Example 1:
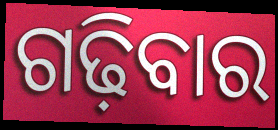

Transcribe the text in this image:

ଗଢ଼ିବାର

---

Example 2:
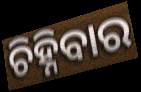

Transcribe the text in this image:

ଚିହ୍ନିବାର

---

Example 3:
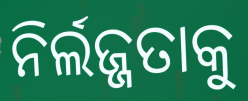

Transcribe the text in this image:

ନିର୍ଲଜ୍ଜତାକୁ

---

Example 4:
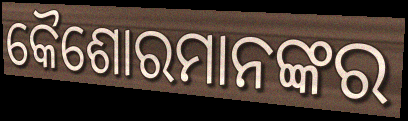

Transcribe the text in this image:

କୈଶୋରମାନଙ୍କର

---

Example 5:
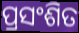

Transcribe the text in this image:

ପ୍ରସଂଶିତ